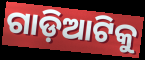
ଗାଡ଼ିଆଟିକୁ